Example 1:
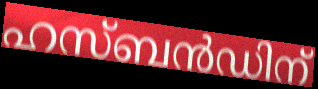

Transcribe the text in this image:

ഹസ്ബൻഡിന്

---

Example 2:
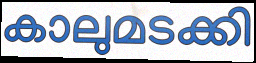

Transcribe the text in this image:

കാലുമടക്കി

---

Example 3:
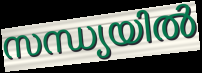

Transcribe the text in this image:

സന്ധ്യയിൽ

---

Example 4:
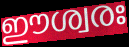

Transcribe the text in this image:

ഈശ്വരഃ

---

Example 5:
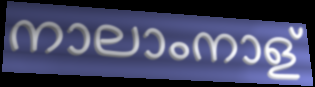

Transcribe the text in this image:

നാലാംനാള്